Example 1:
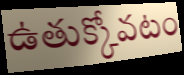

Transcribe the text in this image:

ఉతుక్కోవటం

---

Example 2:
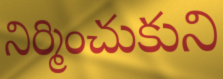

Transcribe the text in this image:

నిర్మించుకుని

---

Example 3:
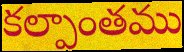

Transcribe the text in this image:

కల్పాంతము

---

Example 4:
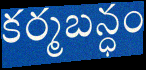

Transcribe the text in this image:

కర్మబన్ధం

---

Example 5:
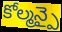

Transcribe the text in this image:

కోల్మన్పై